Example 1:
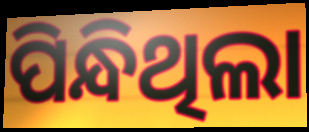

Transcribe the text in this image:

ପିନ୍ଧିଥିଲା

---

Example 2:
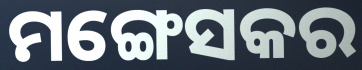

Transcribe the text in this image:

ମଙ୍ଗେସକର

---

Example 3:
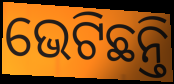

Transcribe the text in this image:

ଭେଟିଛନ୍ତି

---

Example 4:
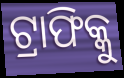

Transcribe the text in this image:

ଟ୍ରାଫିକ୍କୁ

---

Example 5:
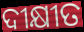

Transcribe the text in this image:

ଦୀକ୍ଷୀତ